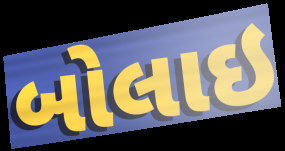
બોલાઇ